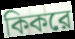
কিকরে